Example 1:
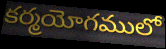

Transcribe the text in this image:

కర్మయోగములో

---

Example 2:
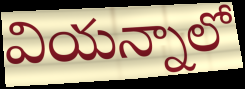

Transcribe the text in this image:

వియన్నాలో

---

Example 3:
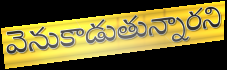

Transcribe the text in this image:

వెనుకాడుతున్నారని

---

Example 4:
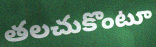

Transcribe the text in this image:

తలచుకొంటూ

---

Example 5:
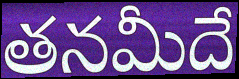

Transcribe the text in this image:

తనమీదే